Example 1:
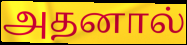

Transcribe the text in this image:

அதனால்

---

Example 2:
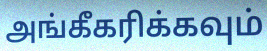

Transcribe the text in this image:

அங்கீகரிக்கவும்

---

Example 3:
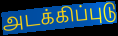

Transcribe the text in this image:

அடக்கிப்புடு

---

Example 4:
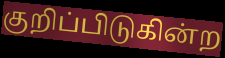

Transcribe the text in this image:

குறிப்பிடுகின்ற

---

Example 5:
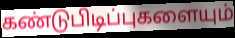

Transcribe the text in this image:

கண்டுபிடிப்புகளையும்